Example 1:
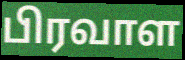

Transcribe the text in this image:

பிரவாள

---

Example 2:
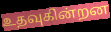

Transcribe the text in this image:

உதவுகின்றன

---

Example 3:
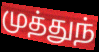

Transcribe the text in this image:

முத்துந்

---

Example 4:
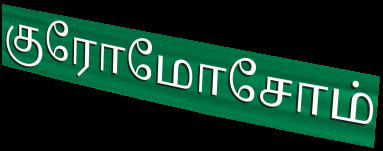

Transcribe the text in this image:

குரோமோசோம்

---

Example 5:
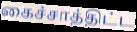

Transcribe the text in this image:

கைச்சாத்திட்ட